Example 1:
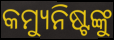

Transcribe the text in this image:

କମ୍ୟୁନିଷ୍ଟଙ୍କୁ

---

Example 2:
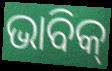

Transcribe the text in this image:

ଭାବିକ୍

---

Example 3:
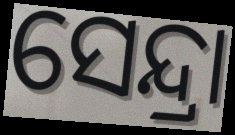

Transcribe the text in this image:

ସେନ୍ଦ୍ରା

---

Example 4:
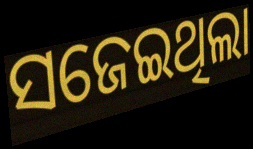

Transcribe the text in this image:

ସଜେଇଥିଲା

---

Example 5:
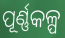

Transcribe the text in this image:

ପୂର୍ଣ୍ଣକଳ୍ପ